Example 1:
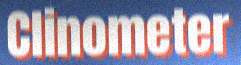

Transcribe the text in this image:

Clinometer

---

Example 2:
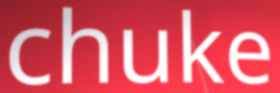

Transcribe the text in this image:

chuke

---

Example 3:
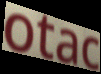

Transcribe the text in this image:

otac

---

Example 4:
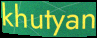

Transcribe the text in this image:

khutyan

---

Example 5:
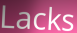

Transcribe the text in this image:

Lacks